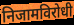
निजामविरोधी